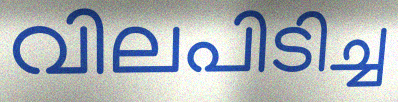
വിലപിടിച്ച